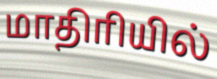
மாதிரியில்